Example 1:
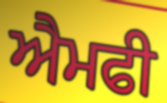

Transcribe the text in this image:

ਐਮਫੀ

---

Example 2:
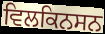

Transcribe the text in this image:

ਵਿਲਕਿਨਸਨ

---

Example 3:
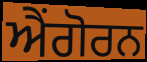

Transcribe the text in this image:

ਐਂਗੋਰਨ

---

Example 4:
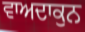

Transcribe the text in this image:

ਵਾਅਦਾਕੁਨ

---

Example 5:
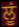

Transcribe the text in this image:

ਲੂਂ